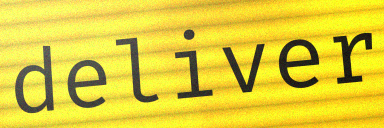
deliver